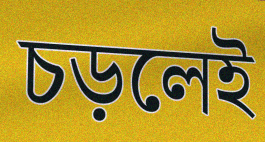
চড়লেই